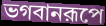
ভগবানরূপে